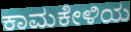
ಕಾಮಕೇಳಿಯ